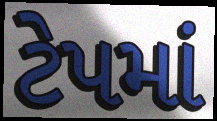
ટેપમાં